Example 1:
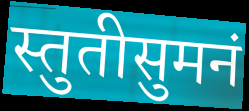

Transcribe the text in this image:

स्तुतीसुमनं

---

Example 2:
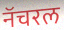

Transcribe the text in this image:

नॅचरल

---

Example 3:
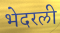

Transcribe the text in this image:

भेदरली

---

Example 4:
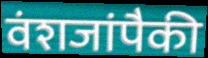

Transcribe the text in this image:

वंशजांपैकी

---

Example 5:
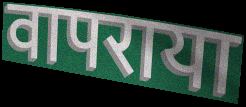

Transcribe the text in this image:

वापराया